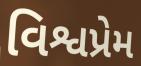
વિશ્વપ્રેમ